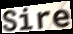
Sire